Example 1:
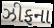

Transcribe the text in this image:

ઝીફના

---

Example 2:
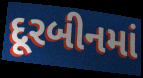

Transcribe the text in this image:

દૂરબીનમાં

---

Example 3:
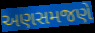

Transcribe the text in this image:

અણસમજણે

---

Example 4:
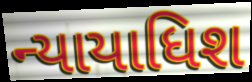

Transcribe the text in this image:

ન્યાયાધિશ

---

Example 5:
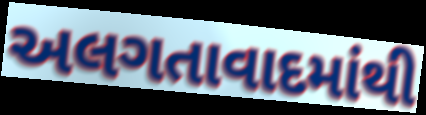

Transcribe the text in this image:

અલગતાવાદમાંથી